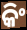
କିଂ